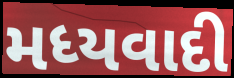
મધ્યવાદી